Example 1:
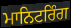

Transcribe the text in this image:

ਮਾਨਿਟਰਿੰਗ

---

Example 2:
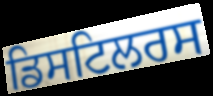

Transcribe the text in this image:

ਡਿਸਟਿਲਰਸ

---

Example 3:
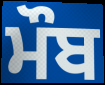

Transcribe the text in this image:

ਮੌਬ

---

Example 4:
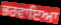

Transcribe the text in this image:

ਭਰਵਾਇਆ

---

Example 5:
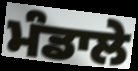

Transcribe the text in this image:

ਮੰਡਾਲੇ